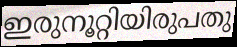
ഇരുനൂറ്റിയിരുപതു